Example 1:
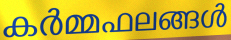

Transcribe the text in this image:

കർമ്മഫലങ്ങൾ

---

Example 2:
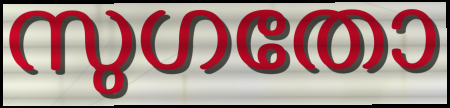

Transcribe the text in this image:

സുഗതോ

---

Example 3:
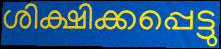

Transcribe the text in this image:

ശിക്ഷിക്കപ്പെട്ടു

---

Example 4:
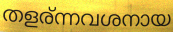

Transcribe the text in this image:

തളര്ന്നവശനായ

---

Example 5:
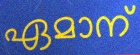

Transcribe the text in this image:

ഏമാന്